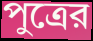
পুত্রের